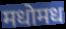
मधोमध